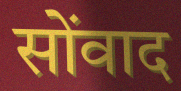
सोंवाद